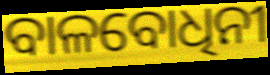
ବାଳବୋଧିନୀ